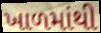
ખાળમાંથી